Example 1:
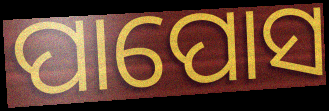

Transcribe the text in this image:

ପାପୋସ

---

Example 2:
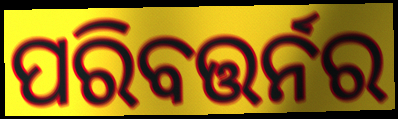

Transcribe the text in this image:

ପରିବତ୍ତର୍ନର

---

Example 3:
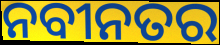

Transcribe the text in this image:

ନବୀନତର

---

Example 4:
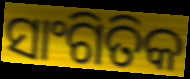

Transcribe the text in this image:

ସାଂଗିତିକ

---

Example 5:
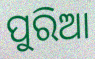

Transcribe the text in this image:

ପୁରିଆ